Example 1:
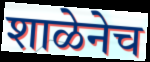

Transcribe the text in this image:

शाळेनेच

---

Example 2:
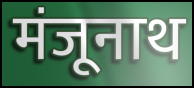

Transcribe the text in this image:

मंजूनाथ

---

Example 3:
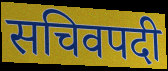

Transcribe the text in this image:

सचिवपदी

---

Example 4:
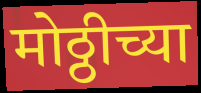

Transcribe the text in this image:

मोठ्ठीच्या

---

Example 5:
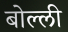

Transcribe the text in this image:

बोल्ली